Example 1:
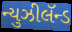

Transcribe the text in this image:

ન્યુઝીલૅન્ડ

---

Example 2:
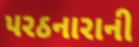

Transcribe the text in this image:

પરઠનારાની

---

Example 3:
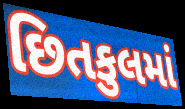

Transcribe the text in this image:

છિતકુલમાં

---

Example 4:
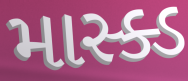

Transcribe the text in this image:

માસ્ક્ડ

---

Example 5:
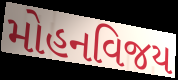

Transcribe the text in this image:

મોહનવિજય